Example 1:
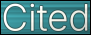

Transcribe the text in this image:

Cited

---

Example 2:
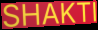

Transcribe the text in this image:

SHAKTI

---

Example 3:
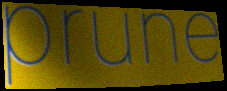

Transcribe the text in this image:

prune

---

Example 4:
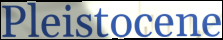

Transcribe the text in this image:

Pleistocene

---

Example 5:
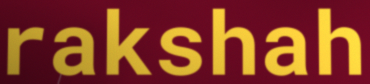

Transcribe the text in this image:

rakshah